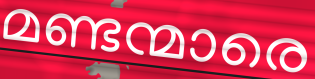
മണ്ടന്മാരെ